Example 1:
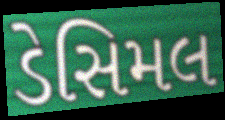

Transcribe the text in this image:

ડેસિમલ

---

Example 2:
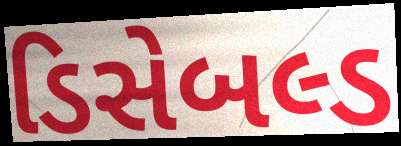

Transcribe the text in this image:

ડિસેબલ્ડ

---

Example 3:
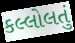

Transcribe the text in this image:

કલ્લોલતું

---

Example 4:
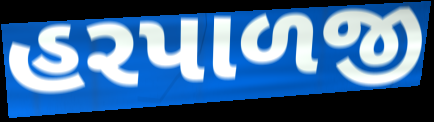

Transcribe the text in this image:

હરપાળજી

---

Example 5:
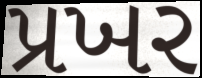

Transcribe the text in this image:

પ્રખર